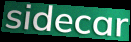
sidecar